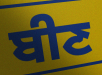
ਬੀਣ